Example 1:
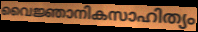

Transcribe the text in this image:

വൈജ്ഞാനികസാഹിത്യം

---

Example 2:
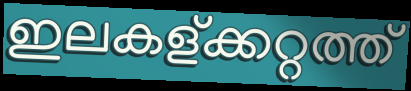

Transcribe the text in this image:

ഇലകള്ക്കറ്റത്ത്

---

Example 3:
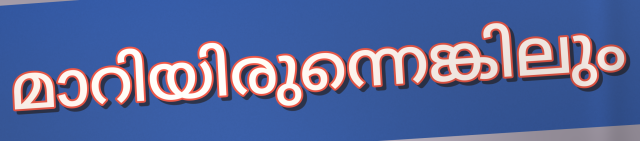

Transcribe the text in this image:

മാറിയിരുന്നെങ്കിലും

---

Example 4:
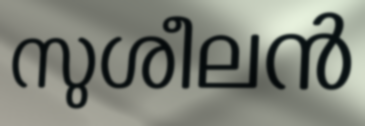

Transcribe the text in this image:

സുശീലൻ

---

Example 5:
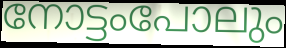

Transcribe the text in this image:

നോട്ടംപോലും